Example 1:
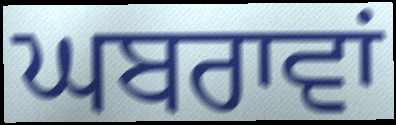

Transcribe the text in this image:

ਘਬਰਾਵਾਂ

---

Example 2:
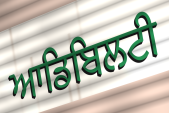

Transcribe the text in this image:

ਆਡਿਬਿਲਟੀ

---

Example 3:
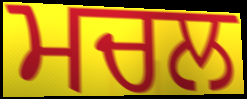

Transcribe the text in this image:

ਮਚਲ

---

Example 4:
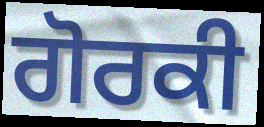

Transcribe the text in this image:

ਗੋਰਕੀ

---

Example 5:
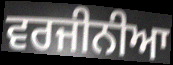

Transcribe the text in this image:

ਵਰਜੀਨੀਆ